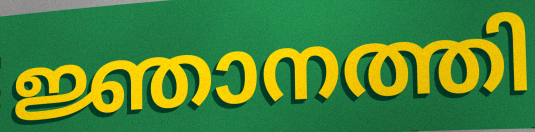
ജ്ഞാനത്തി